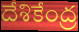
దేశికేంద్ర